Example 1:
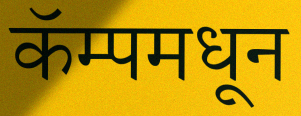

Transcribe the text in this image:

कॅम्पमधून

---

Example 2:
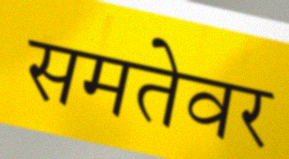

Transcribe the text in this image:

समतेवर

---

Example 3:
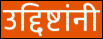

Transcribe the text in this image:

उद्दिष्टांनी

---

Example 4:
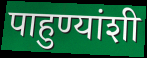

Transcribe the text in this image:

पाहुण्यांशी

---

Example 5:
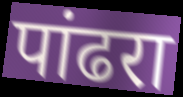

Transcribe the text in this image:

पांढरा